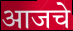
आजचे